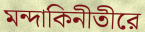
মন্দাকিনীতীরে